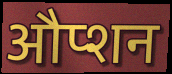
औप्शन